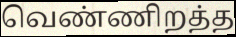
வெண்ணிறத்த